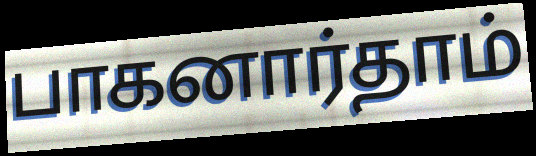
பாகனார்தாம்